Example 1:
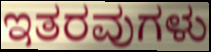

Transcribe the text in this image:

ಇತರವುಗಳು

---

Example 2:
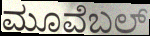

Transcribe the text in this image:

ಮೂವೆಬಲ್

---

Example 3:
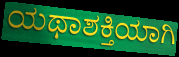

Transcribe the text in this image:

ಯಥಾಶಕ್ತಿಯಾಗಿ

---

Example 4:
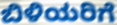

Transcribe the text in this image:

ಬಿಳಿಯರಿಗೆ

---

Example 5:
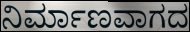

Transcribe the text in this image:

ನಿರ್ಮಾಣವಾಗದ